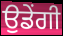
ਉਡੇਂਗੀ